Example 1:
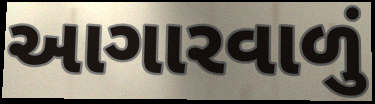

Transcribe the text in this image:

આગારવાળું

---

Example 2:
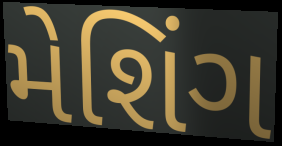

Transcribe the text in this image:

મેશિંગ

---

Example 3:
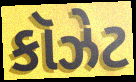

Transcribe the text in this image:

કૉઝેટ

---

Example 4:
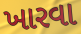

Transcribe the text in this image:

ખારવા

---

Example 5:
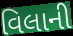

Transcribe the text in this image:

વિલાની